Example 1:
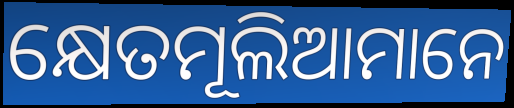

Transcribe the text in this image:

କ୍ଷେତମୂଲିଆମାନେ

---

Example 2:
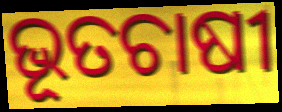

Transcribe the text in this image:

ଭୂତଚାଷୀ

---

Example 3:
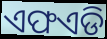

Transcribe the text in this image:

ଏଫଏଡି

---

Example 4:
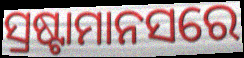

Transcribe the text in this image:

ସ୍ରଷ୍ଟାମାନସରେ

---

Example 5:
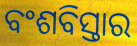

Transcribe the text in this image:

ବଂଶବିସ୍ତାର